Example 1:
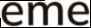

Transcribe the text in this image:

eme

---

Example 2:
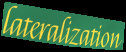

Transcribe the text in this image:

lateralization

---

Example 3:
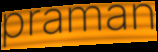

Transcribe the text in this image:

praman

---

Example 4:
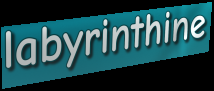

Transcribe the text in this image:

labyrinthine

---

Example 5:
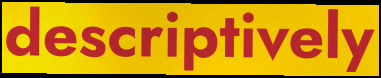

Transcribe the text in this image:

descriptively